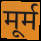
मूर्म